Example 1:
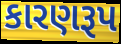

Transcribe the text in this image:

કારણરૂપ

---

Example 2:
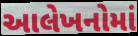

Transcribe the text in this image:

આલેખનોમાં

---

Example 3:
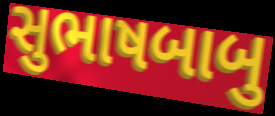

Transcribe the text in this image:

સુભાષબાબુ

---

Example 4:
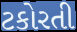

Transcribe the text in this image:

ટકોરતી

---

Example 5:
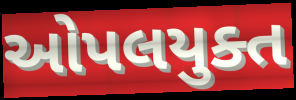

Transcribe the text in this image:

ઓપલયુક્ત